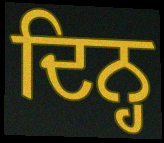
ਦਿਨ੍ਹ